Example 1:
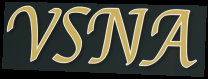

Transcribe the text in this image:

VSNA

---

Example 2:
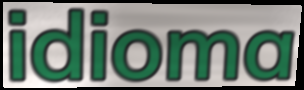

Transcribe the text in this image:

idioma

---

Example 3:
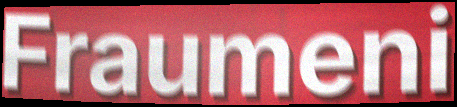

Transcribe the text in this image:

Fraumeni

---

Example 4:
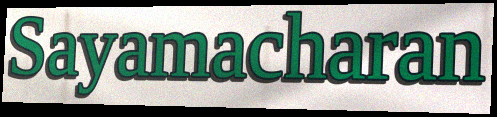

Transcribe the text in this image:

Sayamacharan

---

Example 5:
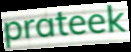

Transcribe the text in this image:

prateek